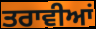
ਤਰਾਵੀਆਂ